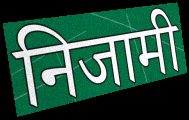
निजामी